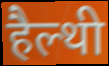
हैल्थी